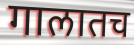
गालातच